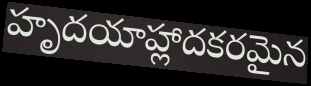
హృదయాహ్లాదకరమైన